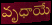
వృధాయే